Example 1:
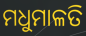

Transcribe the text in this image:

ମଧୁମାଳତି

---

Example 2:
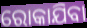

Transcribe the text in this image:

ରୋକାଯିବା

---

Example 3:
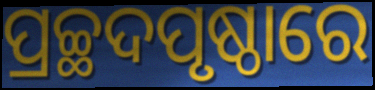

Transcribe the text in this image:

ପ୍ରଚ୍ଛଦପୃଷ୍ଠାରେ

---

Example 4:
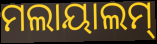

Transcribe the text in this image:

ମଲାୟାଲମ୍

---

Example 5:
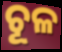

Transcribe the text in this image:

ଚୂଳ